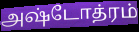
அஷ்டோத்ரம்